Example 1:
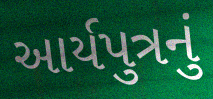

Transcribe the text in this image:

આર્યપુત્રનું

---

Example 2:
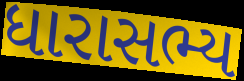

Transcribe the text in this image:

ધારાસભ્ય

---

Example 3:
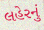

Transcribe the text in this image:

લહેરનું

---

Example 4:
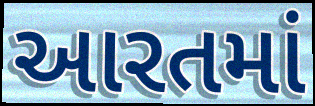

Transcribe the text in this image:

આરતમાં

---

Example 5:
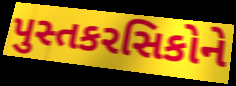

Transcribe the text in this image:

પુસ્તકરસિકોને